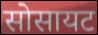
सोसायट